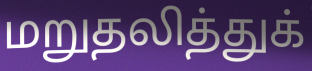
மறுதலித்துக்